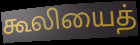
கூலியைத்